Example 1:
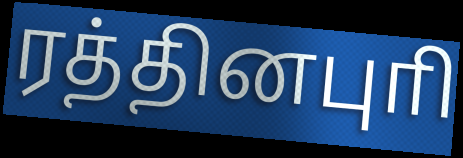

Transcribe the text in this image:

ரத்தினபுரி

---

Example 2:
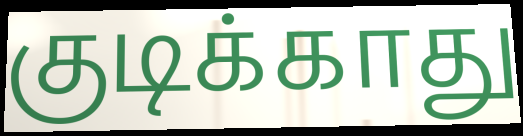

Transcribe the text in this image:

குடிக்காது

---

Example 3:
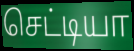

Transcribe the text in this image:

செட்டியா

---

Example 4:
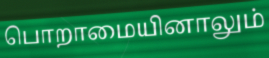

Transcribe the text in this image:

பொறாமையினாலும்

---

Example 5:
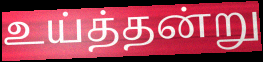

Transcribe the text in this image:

உய்த்தன்று